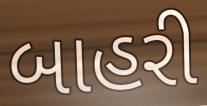
બાહરી